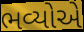
ભવ્યોએ